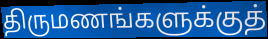
திருமணங்களுக்குத்